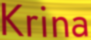
Krina